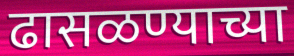
ढासळण्याच्या